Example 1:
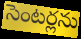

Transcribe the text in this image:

సెంటర్లను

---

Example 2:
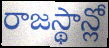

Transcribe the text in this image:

రాజస్థాన్లో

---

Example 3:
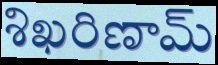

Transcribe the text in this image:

శిఖరిణామ్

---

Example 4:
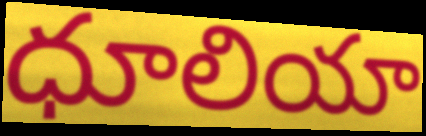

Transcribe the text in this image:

ధూలియా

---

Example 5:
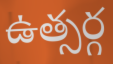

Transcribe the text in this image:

ఉత్సర్గ